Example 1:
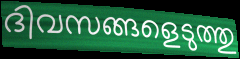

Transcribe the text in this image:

ദിവസങ്ങളെടുത്തു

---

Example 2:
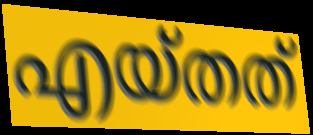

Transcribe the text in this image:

എയ്തത്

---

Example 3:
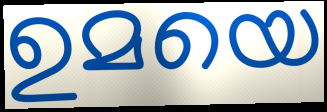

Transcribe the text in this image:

ഉമയെ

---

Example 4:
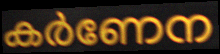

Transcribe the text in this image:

കർണേന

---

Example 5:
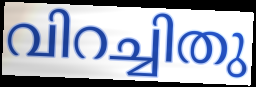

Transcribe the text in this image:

വിറച്ചിതു